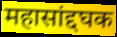
महासांद्दघक